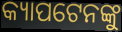
କ୍ୟାପଟେନଙ୍କୁ